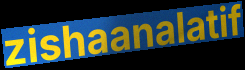
zishaanalatif